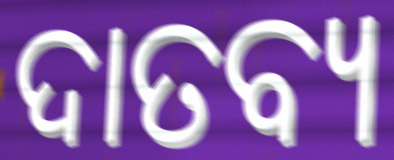
ଦାତବ୍ୟ